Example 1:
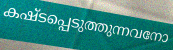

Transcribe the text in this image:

കഷ്ടപ്പെടുത്തുന്നവനോ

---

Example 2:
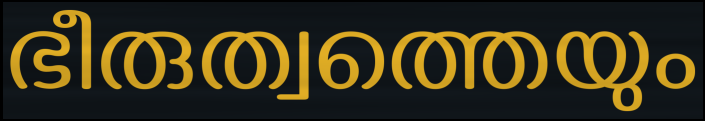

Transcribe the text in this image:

ഭീരുത്വത്തെയും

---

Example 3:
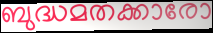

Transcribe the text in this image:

ബുദ്ധമതക്കാരോ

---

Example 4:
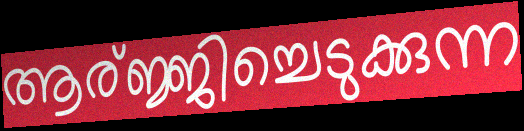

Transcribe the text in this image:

ആര്ജ്ജിച്ചെടുക്കുന്ന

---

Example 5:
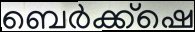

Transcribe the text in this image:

ബെർക്ക്ഷെ